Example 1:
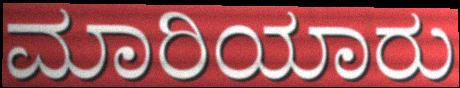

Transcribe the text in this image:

ಮಾರಿಯಾರು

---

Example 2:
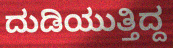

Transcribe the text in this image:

ದುಡಿಯುತ್ತಿದ್ದ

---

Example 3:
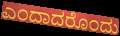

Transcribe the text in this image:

ಎಂದಾದರೊಂದು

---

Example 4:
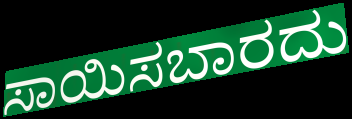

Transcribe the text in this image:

ಸಾಯಿಸಬಾರದು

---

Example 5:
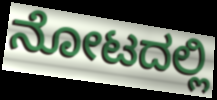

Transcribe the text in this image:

ನೋಟದಲ್ಲಿ